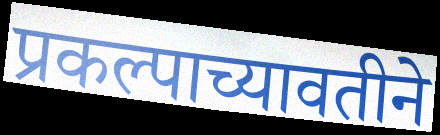
प्रकल्पाच्यावतीने